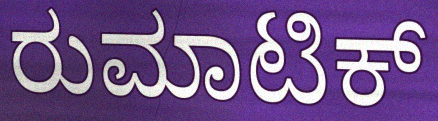
ರುಮಾಟಿಕ್